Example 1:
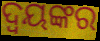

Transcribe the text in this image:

ଦ୍ବୟଙ୍କର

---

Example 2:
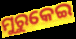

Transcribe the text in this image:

ମୁରୁକେଇ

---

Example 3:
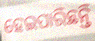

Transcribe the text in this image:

ହେଇପାରିଛନ୍ତି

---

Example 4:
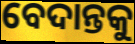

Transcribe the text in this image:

ବେଦାନ୍ତକୁ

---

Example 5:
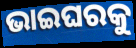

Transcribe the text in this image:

ଭାଇଘରକୁ